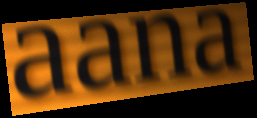
aana